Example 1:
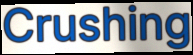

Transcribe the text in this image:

Crushing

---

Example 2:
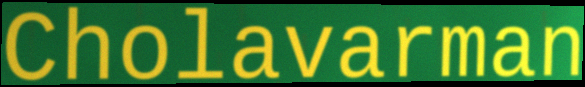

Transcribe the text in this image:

Cholavarman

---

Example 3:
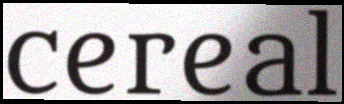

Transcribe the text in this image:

cereal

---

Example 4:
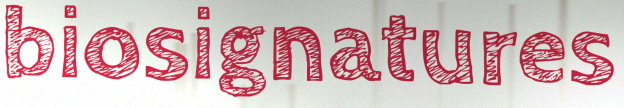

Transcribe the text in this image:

biosignatures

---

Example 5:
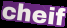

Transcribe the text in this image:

cheif